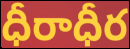
ధీరాధీర